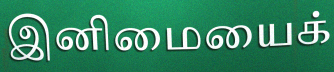
இனிமையைக்